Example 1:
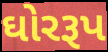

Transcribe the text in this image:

ઘોરરૂપ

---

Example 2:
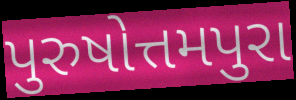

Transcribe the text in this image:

પુરુષોત્તમપુરા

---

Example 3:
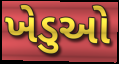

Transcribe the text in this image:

ખેડુઓ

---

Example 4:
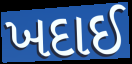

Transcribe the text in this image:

ખદાઈ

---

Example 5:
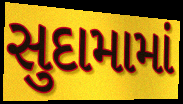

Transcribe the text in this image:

સુદામામાં